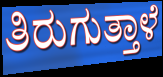
ತಿರುಗುತ್ತಾಳೆ